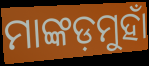
ମାଙ୍କଡ଼ମୁହାଁ